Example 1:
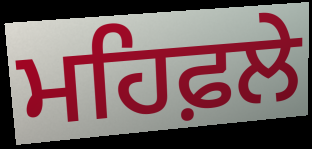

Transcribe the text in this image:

ਮਹਿਫ਼ਲੇ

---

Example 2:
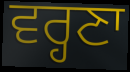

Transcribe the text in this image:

ਵਰ੍ਹਣਾ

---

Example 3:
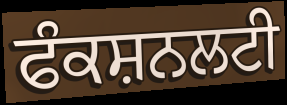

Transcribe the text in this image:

ਫੰਕਸ਼ਨਲਟੀ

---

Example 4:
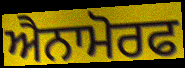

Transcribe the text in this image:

ਐਨਾਮੋਰਫ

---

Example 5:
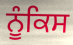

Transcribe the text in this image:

ਨੂੰਕਿਸ